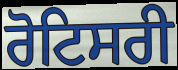
ਰੋਟਿਸਰੀ